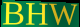
BHW